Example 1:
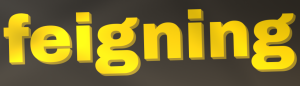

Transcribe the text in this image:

feigning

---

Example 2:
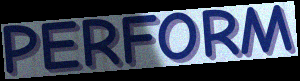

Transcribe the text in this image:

PERFORM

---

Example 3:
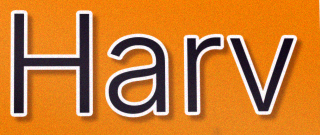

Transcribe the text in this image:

Harv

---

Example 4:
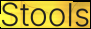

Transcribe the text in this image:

Stools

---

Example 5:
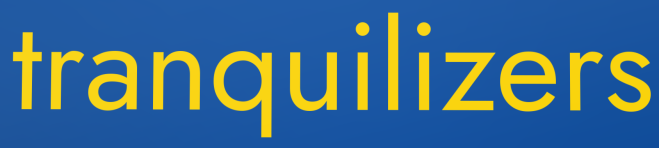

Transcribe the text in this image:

tranquilizers